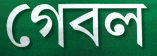
গেবল